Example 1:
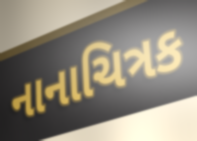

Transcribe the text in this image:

નાનાચિત્રક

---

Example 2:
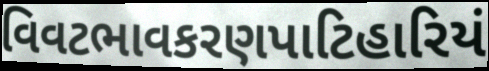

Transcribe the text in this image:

વિવટભાવકરણપાટિહારિયં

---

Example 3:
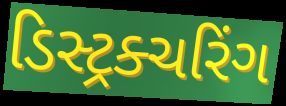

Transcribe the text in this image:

ડિસ્ટ્રક્ચરિંગ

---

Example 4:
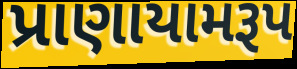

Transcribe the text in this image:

પ્રાણાયામરૂપ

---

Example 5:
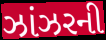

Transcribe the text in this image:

ઝાંઝરની